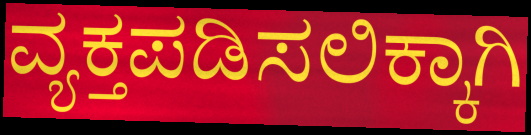
ವ್ಯಕ್ತಪಡಿಸಲಿಕ್ಕಾಗಿ